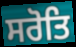
ਸਰੋਤਿ